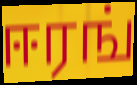
ஈரங்